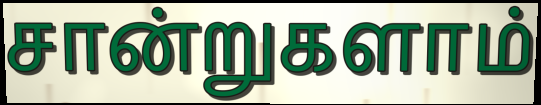
சான்றுகளாம்